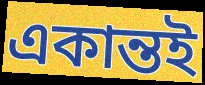
একান্তই